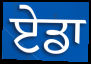
ਏਡਾ